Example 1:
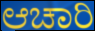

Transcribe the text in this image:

ಆಚಾರಿ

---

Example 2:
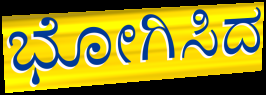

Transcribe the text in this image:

ಭೋಗಿಸಿದ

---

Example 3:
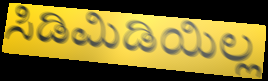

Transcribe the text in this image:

ಸಿಡಿಮಿಡಿಯಿಲ್ಲ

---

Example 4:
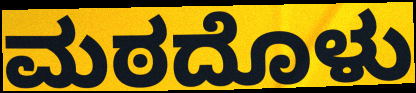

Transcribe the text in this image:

ಮಠದೊಳು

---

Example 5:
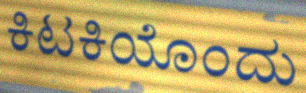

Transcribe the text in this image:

ಕಿಟಕಿಯೊಂದು